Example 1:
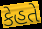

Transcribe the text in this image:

કેહતે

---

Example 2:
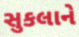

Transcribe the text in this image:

સુકલાને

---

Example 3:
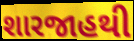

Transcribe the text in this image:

શારજાહથી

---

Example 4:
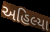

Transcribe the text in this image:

અહિલ્યા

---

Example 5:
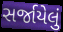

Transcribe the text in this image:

સર્જાયેલું